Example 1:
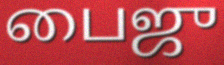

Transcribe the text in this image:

பைஜு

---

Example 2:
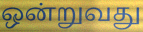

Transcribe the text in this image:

ஒன்றுவது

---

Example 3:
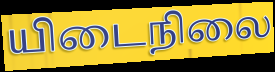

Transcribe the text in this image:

யிடைநிலை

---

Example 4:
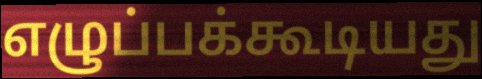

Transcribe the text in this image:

எழுப்பக்கூடியது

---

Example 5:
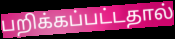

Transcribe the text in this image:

பறிக்கப்பட்டதால்